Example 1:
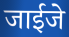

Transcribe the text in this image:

जाईजे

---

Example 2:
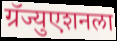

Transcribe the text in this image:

ग्रॅज्युएशनला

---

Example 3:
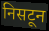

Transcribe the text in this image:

निसटून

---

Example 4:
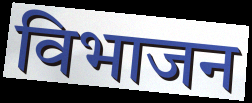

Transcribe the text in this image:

विभाजन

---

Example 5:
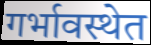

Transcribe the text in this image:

गर्भावस्थेत